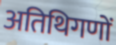
अतिथिगणों